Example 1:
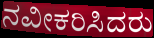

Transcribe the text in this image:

ನವೀಕರಿಸಿದರು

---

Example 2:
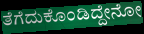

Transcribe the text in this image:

ತೆಗೆದುಕೊಂಡಿದ್ದೇನೋ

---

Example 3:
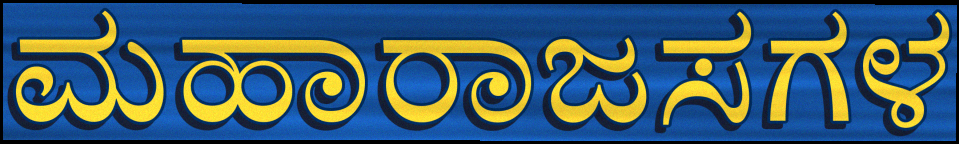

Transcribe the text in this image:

ಮಹಾರಾಜಸಗಳ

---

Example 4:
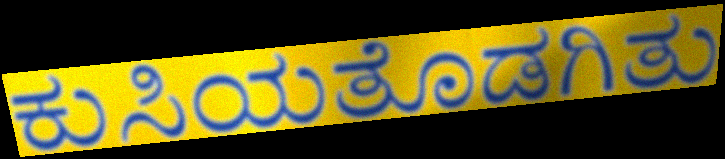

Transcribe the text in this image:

ಕುಸಿಯತೊಡಗಿತು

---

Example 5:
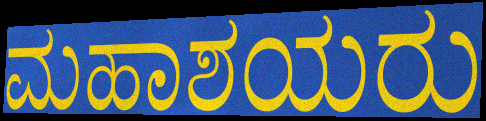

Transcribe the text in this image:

ಮಹಾಶಯರು